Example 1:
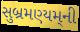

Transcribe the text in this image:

સુબ્રમણ્યમ્‌ની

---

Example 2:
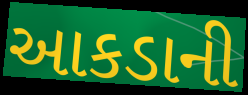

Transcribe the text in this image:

આકડાની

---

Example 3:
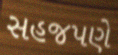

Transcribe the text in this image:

સહજપણે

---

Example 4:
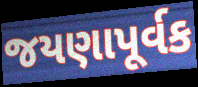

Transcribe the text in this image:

જયણાપૂર્વક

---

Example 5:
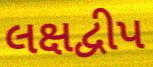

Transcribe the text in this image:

લક્ષદ્વીપ